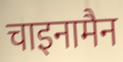
चाइनामैन